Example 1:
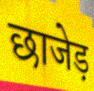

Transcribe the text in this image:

छाजेड़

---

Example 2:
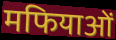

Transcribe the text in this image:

मफियाओं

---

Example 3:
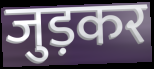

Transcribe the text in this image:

जुड़कर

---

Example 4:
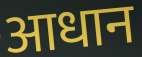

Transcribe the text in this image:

आधान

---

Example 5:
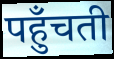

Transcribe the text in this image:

पहुँचती